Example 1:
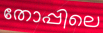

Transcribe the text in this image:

തോപ്പിലെ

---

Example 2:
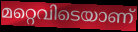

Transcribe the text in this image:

മറ്റെവിടെയാണ്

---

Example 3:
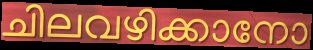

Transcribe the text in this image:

ചിലവഴിക്കാനോ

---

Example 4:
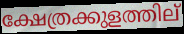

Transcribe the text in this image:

ക്ഷേത്രക്കുളത്തില്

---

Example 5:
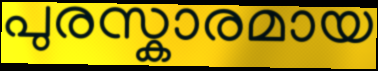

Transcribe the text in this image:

പുരസ്കാരമായ